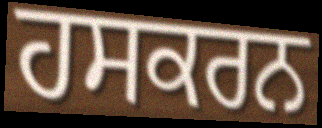
ਹਸਕਰਨ